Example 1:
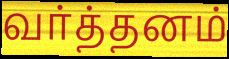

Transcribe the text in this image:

வர்த்தனம்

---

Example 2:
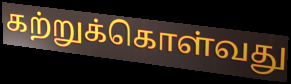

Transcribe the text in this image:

கற்றுக்கொள்வது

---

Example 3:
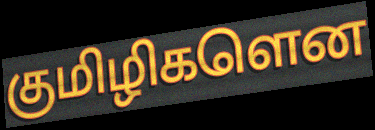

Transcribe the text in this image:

குமிழிகளென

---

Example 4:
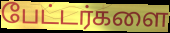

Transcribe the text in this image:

பேட்டர்களை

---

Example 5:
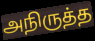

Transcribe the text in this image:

அநிருத்த